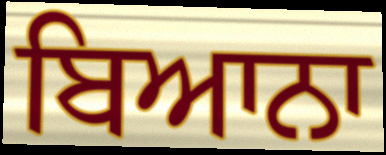
ਬਿਆਨਾ